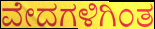
ವೇದಗಳಿಗಿಂತ